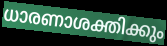
ധാരണാശക്തിക്കും